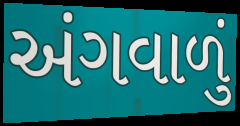
અંગવાળું